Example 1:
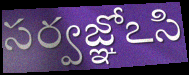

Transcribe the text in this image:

సర్వజ్ఞోఽసి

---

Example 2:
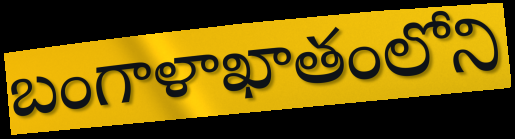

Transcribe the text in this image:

బంగాళాఖాతంలోని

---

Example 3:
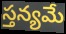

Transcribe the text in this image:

స్తన్యమే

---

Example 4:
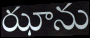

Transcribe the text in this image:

ఝాను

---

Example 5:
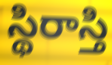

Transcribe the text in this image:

స్థిరాస్తి